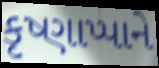
કૃષ્ણાપ્પાને